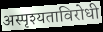
अस्पृश्यताविरोधी